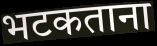
भटकताना